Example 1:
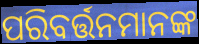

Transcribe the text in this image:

ପରିବର୍ତ୍ତନମାନଙ୍କ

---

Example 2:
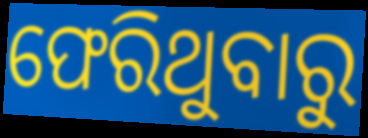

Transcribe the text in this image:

ଫେରିଥୁବାରୁ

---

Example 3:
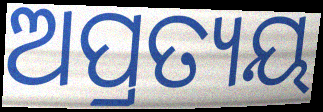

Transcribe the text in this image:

ଅପ୍ରତ୍ୟୟ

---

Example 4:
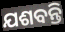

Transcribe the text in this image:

ଯଶବନ୍ତି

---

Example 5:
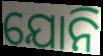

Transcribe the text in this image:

ଯୋନି